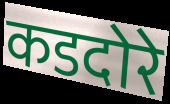
कडदोरे